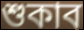
শুকাব